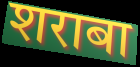
शराबा